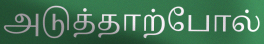
அடுத்தாற்போல்